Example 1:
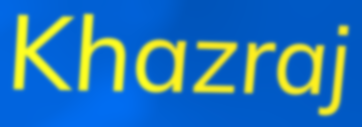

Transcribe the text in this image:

Khazraj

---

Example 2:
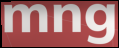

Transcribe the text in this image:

mng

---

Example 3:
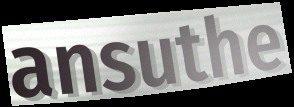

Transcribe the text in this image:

ansuthe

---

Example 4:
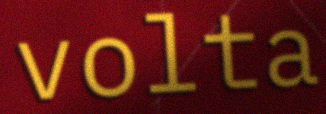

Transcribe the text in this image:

volta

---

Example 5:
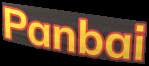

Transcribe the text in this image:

Panbai